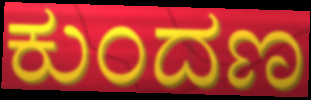
ಕುಂದಣ